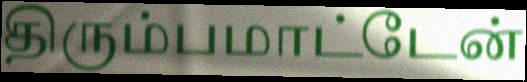
திரும்பமாட்டேன்